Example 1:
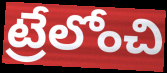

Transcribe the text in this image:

ట్రేలోంచి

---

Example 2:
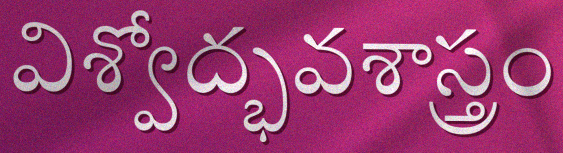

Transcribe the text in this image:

విశ్వోద్భవశాస్త్రం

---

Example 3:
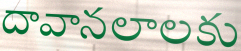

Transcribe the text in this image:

దావానలాలకు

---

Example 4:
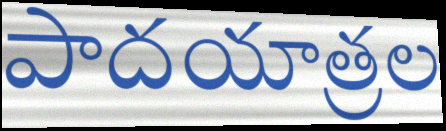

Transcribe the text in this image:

పాదయాత్రల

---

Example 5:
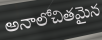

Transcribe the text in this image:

అనాలోచితమైన